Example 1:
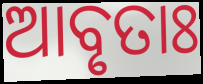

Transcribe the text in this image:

ଆବୃତାଃ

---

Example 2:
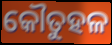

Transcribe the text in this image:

କୌତୁହଳ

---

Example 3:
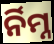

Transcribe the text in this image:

ର୍ନିମ୍ନ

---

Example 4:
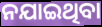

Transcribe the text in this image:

ନଯାଇଥିବା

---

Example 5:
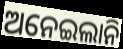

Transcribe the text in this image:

ଅନେଇଲାନି